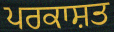
ਪਰਕਾਸ਼ਤ